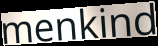
menkind